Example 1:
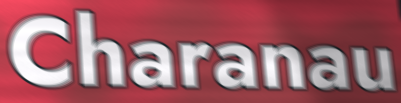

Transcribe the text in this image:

Charanau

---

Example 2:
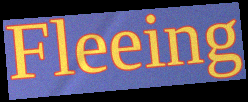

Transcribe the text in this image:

Fleeing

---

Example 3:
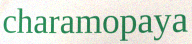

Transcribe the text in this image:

charamopaya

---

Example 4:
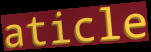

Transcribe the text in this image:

aticle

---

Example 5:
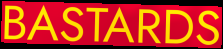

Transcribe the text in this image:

BASTARDS